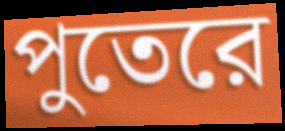
পুতেরে